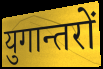
युगान्तरों